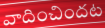
వాదించిందట